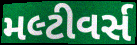
મલ્ટીવર્સ